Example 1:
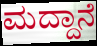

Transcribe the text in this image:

ಮದ್ದಾನೆ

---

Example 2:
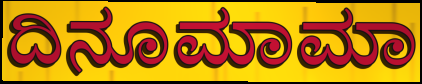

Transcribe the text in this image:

ದಿನೂಮಾಮಾ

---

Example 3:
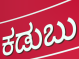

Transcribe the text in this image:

ಕಡುಬು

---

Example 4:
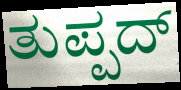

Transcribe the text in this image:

ತುಪ್ಪದ್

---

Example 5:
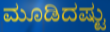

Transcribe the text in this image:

ಮೂಡಿದಷ್ಟು